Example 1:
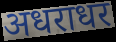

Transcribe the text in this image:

अधराधर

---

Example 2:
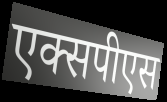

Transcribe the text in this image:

एक्सपीएस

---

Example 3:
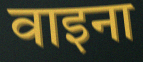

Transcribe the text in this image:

वाइना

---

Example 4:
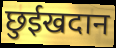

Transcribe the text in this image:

छुईखदान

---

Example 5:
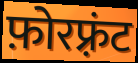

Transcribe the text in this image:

फ़ोरफ़्रंट